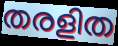
തരളിത